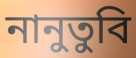
নানুতুবি